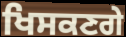
ਖਿਸਕਣਗੇ